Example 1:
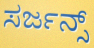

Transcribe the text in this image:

ಸರ್ಜನ್ಸ್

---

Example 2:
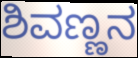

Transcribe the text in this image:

ಶಿವಣ್ಣನ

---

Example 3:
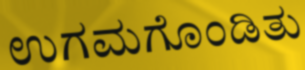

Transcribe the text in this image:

ಉಗಮಗೊಂಡಿತು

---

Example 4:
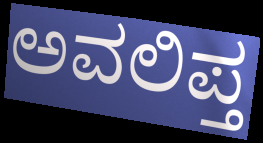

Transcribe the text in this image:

ಅವಲಿಪ್ತ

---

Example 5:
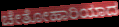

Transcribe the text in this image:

ಚೇತೋಹಾರಿಯಾದ